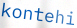
kontehi